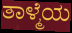
ತಾಳ್ಮೆಯ